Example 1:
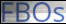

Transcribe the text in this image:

FBOs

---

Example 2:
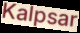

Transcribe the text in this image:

Kalpsar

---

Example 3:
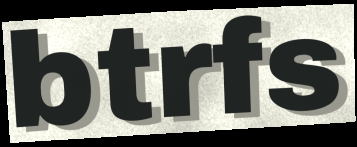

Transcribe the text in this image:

btrfs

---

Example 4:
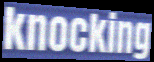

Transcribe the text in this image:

knocking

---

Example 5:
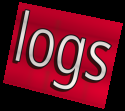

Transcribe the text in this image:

logs